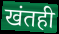
खंतही